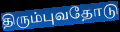
திரும்புவதோடு